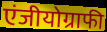
एंजीयोग्राफी